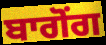
ਬਾਗੋਂਗ